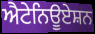
ਐਟੇਨਿਊਏਸ਼ਨ